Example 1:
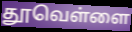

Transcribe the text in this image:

தூவெள்ளை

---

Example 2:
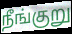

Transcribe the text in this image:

நீங்குறு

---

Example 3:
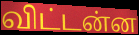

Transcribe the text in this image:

விட்டன்ன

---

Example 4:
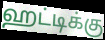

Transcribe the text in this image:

ஹட்டிக்கு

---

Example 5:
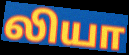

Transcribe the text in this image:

லியா